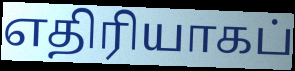
எதிரியாகப்